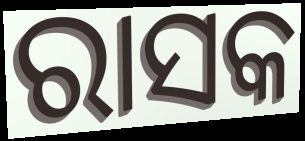
ରାସକ